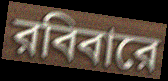
রবিবারে